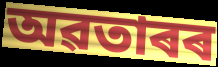
অৱতাৰৰ